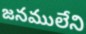
జనములేని